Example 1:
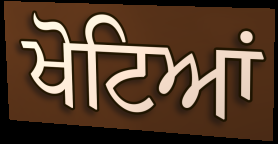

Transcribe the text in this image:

ਖੋਟਿਆਂ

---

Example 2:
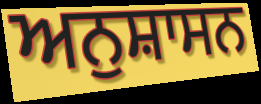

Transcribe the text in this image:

ਅਨੁਸ਼ਾਸਨ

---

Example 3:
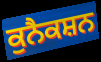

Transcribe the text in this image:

ਕੁਨੈਕਸ਼ਨ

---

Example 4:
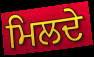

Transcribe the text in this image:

ਮਿਲਦੇ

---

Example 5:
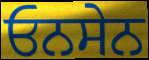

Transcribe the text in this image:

ਓਨਸੇਨ